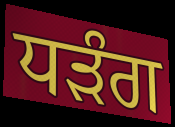
ਧੜੰਗ